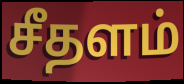
சீதளம்